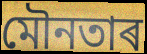
মৌনতাৰ